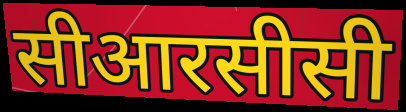
सीआरसीसी